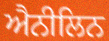
ਐਨੀਲਿਨ